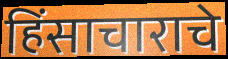
हिंसाचाराचे